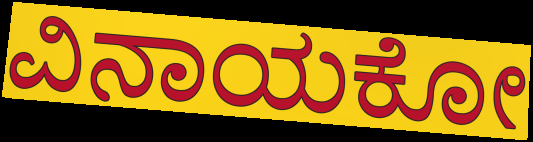
ವಿನಾಯಕೋ